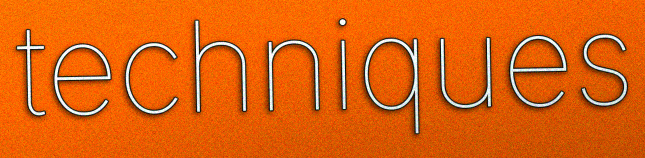
techniques